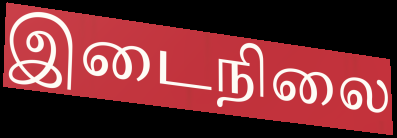
இடைநிலை